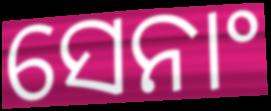
ସେନାଂ